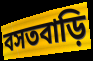
বসতবাড়ি